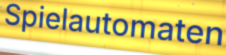
Spielautomaten